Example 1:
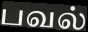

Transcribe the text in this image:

பவல்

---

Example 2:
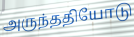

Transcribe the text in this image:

அருந்ததியோடு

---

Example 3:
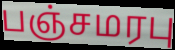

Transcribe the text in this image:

பஞ்சமரபு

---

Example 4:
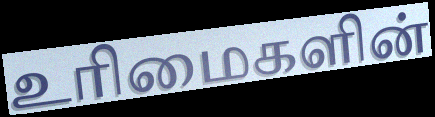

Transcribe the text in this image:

உரிமைகளின்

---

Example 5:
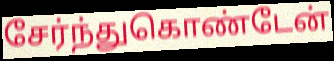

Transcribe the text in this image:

சேர்ந்துகொண்டேன்